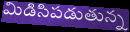
మిడిసిపడుతున్న